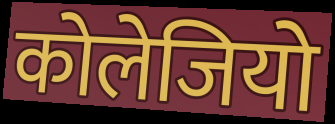
कोलेजियो